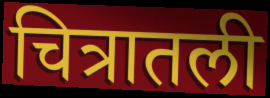
चित्रातली